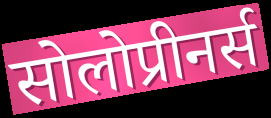
सोलोप्रीनर्स